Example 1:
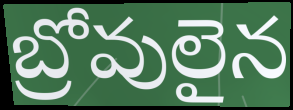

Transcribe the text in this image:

బ్రోవులైన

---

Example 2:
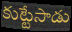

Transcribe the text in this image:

కుట్టేసాడు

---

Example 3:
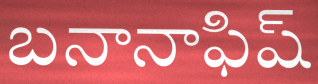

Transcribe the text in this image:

బనానాఫిష్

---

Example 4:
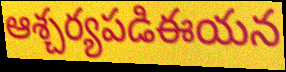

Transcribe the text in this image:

ఆశ్చర్యపడిఈయన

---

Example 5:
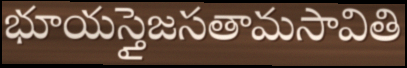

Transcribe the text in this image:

భూయస్తైజసతామసావితి